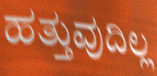
ಹತ್ತುವುದಿಲ್ಲ